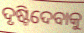
ଦୃଷ୍ଟିଦେବାକୁ